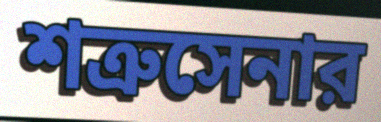
শত্রুসেনার